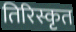
तिरिस्कृत